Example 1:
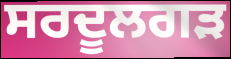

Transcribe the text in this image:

ਸਰਦੂਲਗੜ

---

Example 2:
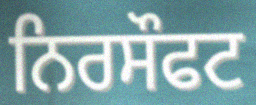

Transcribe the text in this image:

ਨਿਰਸੌਫਟ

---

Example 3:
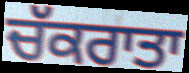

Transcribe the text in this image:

ਚੱਕਰਾਤਾ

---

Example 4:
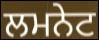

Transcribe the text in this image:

ਲਮਨੇਟ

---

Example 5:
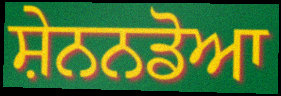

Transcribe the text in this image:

ਸ਼ੇਨਨਡੋਆ